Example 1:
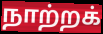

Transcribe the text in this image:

நாற்றக்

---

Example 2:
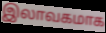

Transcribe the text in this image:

இலாவகமாக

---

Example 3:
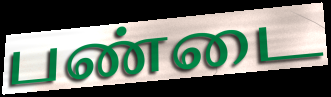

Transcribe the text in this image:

பண்டை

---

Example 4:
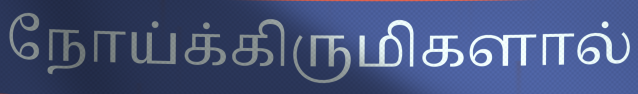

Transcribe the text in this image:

நோய்க்கிருமிகளால்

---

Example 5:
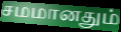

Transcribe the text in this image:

சமமானதும்